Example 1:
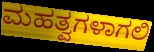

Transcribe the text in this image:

ಮಹತ್ವಗಳಾಗಲಿ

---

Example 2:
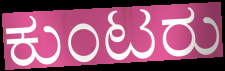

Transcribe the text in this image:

ಕುಂಟರು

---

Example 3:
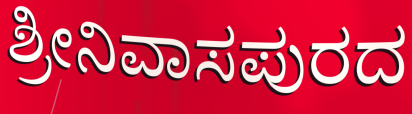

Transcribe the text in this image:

ಶ್ರೀನಿವಾಸಪುರದ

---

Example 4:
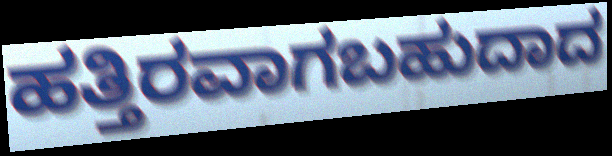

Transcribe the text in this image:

ಹತ್ತಿರವಾಗಬಹುದಾದ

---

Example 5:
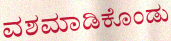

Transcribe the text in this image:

ವಶಮಾಡಿಕೊಂಡು